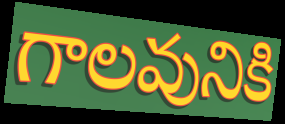
గాలవునికి